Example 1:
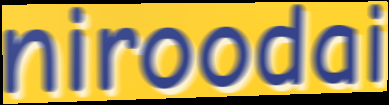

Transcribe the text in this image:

niroodai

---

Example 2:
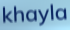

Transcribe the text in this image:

khayla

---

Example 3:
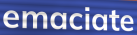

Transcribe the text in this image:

emaciate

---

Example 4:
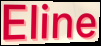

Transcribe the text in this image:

Eline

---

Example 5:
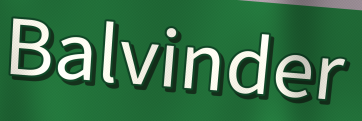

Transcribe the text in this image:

Balvinder